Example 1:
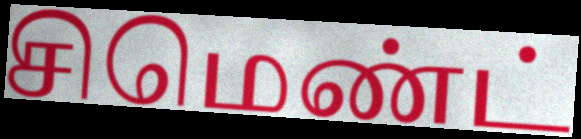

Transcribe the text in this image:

சிமெண்ட்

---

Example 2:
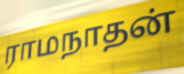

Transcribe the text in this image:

ராமநாதன்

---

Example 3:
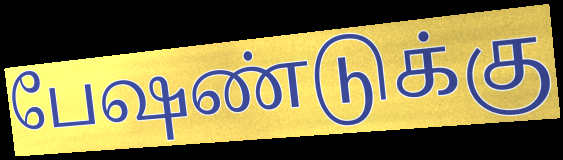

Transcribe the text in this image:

பேஷண்டுக்கு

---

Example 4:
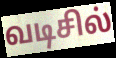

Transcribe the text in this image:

வடிசில்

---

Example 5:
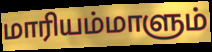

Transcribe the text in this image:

மாரியம்மாளும்